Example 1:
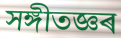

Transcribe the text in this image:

সঙ্গীতজ্ঞৰ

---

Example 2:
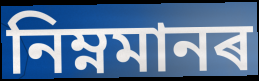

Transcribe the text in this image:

নিম্নমানৰ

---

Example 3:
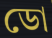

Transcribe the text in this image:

ডো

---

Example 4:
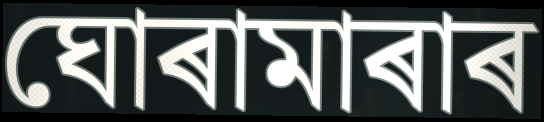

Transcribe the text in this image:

ঘোৰামাৰাৰ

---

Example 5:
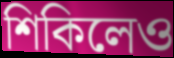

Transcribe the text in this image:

শিকিলেও